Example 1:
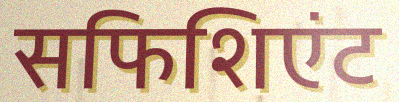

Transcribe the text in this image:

सफिशिएंट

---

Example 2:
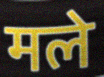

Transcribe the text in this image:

मले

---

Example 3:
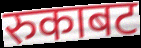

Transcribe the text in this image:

रुकाबट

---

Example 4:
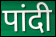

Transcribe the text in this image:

पांदी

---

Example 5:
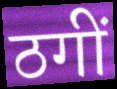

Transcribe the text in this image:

ठगीं